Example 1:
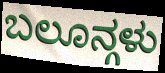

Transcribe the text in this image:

ಬಲೂನ್ಗಳು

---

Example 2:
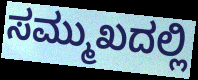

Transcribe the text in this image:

ಸಮ್ಮುಖದಲ್ಲಿ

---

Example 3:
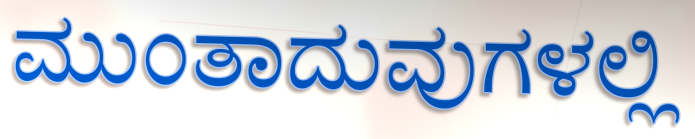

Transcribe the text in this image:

ಮುಂತಾದುವುಗಳಲ್ಲಿ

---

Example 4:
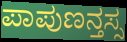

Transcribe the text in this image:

ಪಾಪುಣನ್ತಸ್ಸ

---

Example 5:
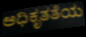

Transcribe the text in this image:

ಅಧಿಕೃತತೆಯ